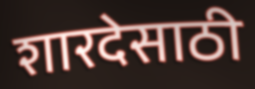
शारदेसाठी